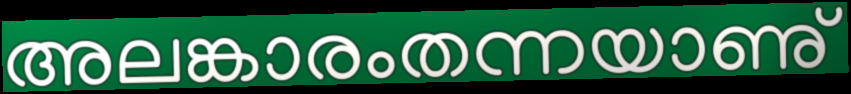
അലങ്കാരംതന്നയാണു്